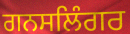
ਗਨਸਲਿੰਗਰ